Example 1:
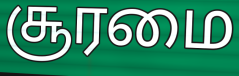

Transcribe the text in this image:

சூரமை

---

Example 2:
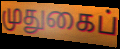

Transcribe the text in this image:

முதுகைப்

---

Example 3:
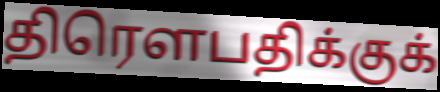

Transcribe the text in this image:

திரௌபதிக்குக்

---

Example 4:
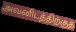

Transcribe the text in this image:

அவனிடத்திற்குத்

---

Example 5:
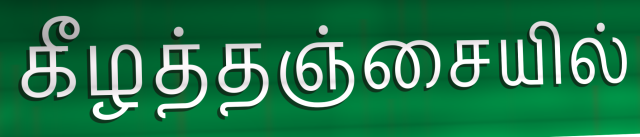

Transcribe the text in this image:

கீழத்தஞ்சையில்